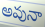
అవునా